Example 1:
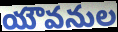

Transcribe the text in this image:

యౌవనుల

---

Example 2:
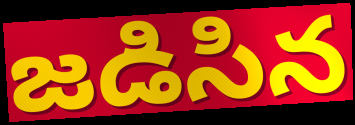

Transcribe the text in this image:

జడిసిన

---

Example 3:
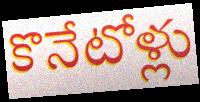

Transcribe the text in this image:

కొనేటోళ్లు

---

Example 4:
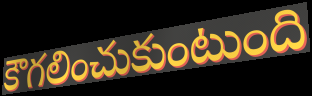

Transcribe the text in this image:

కౌగలించుకుంటుంది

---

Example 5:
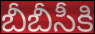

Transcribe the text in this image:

బీబీసీకి